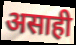
असाही